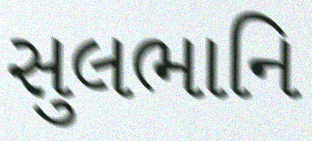
સુલભાનિ